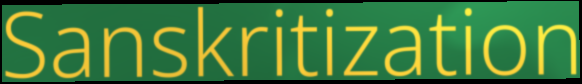
Sanskritization